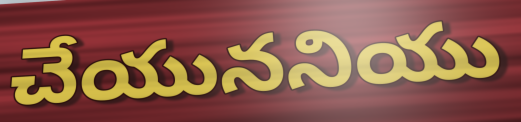
చేయుననియు